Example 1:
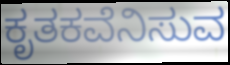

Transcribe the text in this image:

ಕೃತಕವೆನಿಸುವ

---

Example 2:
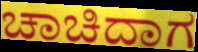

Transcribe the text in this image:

ಚಾಚಿದಾಗ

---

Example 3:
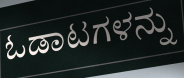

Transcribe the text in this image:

ಓಡಾಟಗಳನ್ನು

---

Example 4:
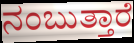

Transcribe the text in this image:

ನಂಬುತ್ತಾರೆ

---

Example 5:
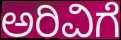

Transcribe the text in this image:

ಅರಿವಿಗೆ